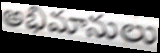
అభిమానులు